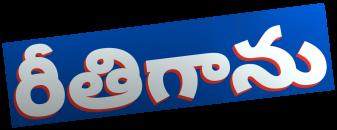
రీతిగాను